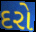
દરો